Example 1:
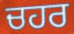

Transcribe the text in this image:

ਚਹਰ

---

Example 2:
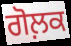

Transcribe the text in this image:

ਗੋਲ਼ਕ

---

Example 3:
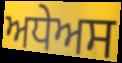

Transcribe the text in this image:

ਅਧੇਅਸ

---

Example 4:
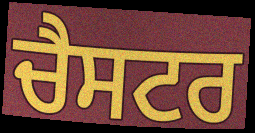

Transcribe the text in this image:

ਚੈਸਟਰ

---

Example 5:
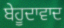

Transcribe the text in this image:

ਬੇਹੂਦਾਵਾਦ